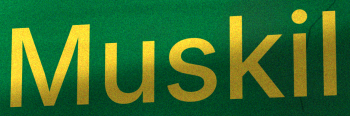
Muskil